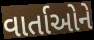
વાર્તાઓને